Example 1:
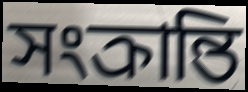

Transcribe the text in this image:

সংক্রান্তি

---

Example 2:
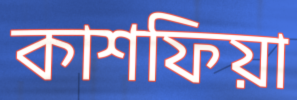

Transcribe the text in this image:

কাশফিয়া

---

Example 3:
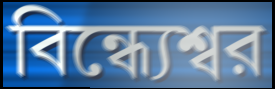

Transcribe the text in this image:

বিন্ধ্যেশ্বর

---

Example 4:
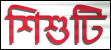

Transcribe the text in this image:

শিশুটি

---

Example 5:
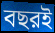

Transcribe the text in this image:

বছরই